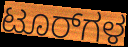
ಟೂರ್‌ಗಳ